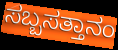
ಸಬ್ಬಸತ್ತಾನಂ